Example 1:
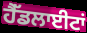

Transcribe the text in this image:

ਹੈੱਡਲਾਈਟਾਂ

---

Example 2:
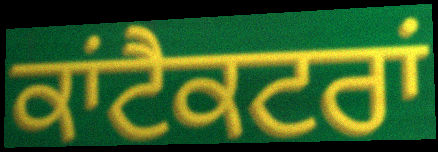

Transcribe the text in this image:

ਕਾਂਟੈਕਟਰਾਂ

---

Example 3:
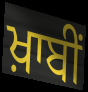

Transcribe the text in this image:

ਖ਼ਾਬੀਂ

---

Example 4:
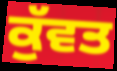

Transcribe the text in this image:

ਕੁੱਵਤ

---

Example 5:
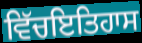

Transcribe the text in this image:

ਵਿੱਚਇਤਿਹਾਸ